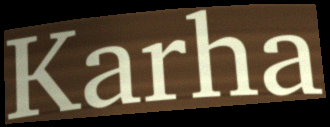
Karha